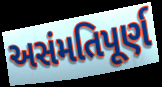
અસંમતિપૂર્ણ